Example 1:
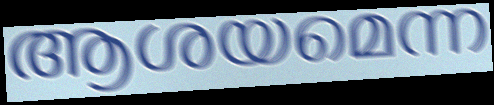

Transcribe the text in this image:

ആശയമെന്ന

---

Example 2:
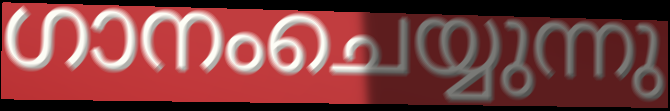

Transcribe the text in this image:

ഗാനംചെയ്യുന്നു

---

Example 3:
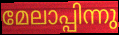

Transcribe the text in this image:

മേലാപ്പിന്നു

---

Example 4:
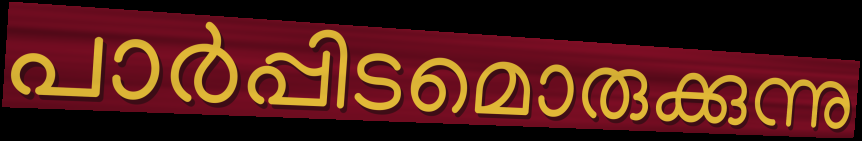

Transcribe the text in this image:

പാർപ്പിടമൊരുക്കുന്നു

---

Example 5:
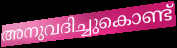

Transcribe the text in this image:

അനുവദിച്ചുകൊണ്ട്